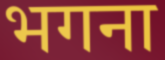
भगना